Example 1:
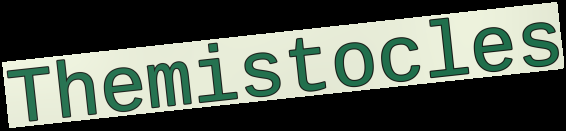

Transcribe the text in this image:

Themistocles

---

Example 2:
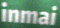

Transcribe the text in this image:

inmai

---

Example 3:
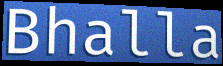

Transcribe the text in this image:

Bhalla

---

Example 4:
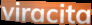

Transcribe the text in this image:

viracita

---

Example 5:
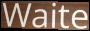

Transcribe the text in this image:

Waite